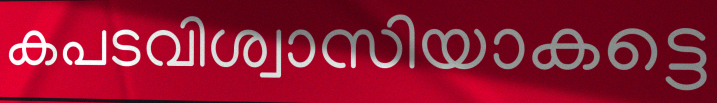
കപടവിശ്വാസിയാകട്ടെ